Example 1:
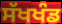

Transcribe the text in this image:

ਸੱਖਖੰਡ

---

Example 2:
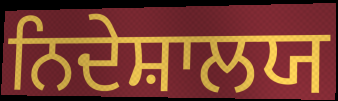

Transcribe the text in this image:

ਨਿਦੇਸ਼ਾਲਯ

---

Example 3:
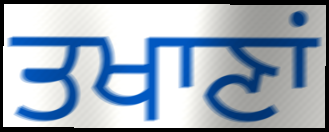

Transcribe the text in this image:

ਤਖਾਣਾਂ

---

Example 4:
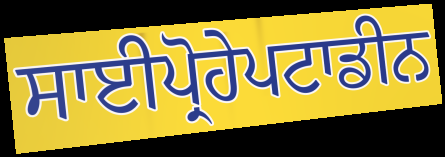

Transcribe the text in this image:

ਸਾਈਪ੍ਰੋਹੇਪਟਾਡੀਨ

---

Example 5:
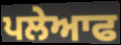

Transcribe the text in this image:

ਪਲੇਆਫ